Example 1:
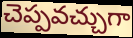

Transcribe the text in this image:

చెప్పవచ్చుగా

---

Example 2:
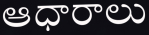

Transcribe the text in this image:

ఆధారాలు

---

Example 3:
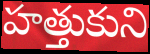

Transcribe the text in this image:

హత్తుకుని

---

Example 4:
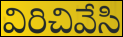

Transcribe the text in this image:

విరిచివేసి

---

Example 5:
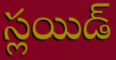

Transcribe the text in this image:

స్లయిడ్